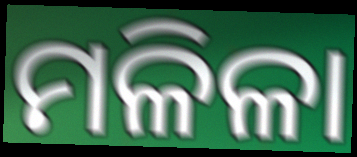
ମଳିଳା